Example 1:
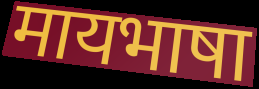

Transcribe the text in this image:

मायभाषा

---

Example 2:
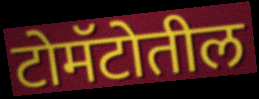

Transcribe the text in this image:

टोमॅटोतील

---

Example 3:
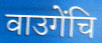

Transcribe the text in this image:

वाउगेंचि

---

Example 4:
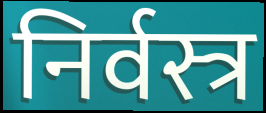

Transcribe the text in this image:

निर्वस्त्र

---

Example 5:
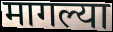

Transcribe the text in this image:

मागल्या